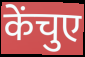
केंचुए